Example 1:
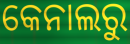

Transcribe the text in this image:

କେନାଲରୁ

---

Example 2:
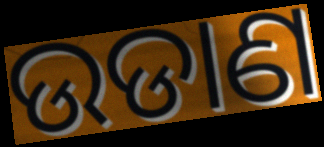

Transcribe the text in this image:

ଉଡାଣ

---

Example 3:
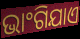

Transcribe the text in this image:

ଭାଂଗିଯାଏ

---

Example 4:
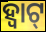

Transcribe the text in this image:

ହ୍ବାଟ୍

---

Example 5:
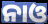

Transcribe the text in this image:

ନାଓ